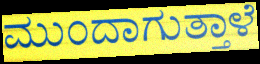
ಮುಂದಾಗುತ್ತಾಳೆ